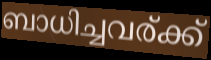
ബാധിച്ചവര്ക്ക്